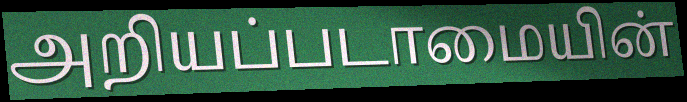
அறியப்படாமையின்